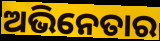
ଅଭିନେତାର